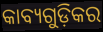
କାବ୍ୟଗୁଡ଼ିକର